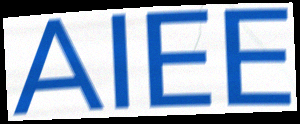
AIEE